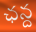
ఛన్ద